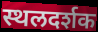
स्थलदर्शक